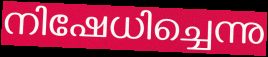
നിഷേധിച്ചെന്നു